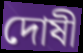
দোষী